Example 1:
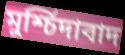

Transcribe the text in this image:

মুৰ্শ্চিদাবাদ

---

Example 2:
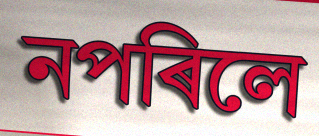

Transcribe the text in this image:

নপৰিলে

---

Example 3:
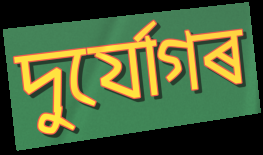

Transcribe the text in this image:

দুৰ্যোগৰ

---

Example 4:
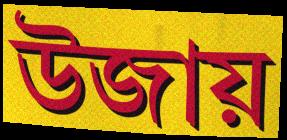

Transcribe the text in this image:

উজায়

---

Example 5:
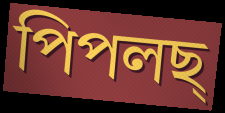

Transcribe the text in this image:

পিপলছ্